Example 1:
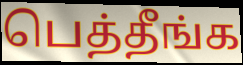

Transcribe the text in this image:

பெத்தீங்க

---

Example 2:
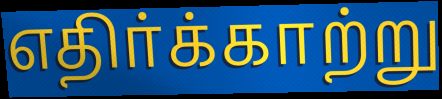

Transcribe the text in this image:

எதிர்க்காற்று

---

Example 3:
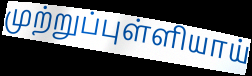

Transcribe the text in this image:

முற்றுப்புள்ளியாய்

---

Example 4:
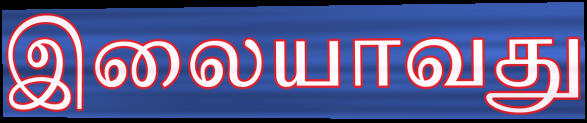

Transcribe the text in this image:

இலையாவது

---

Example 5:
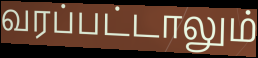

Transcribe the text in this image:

வரப்பட்டாலும்